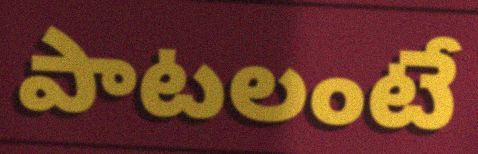
పాటలంటే